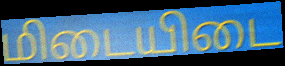
மிடையிடை